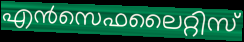
എൻസെഫലൈറ്റിസ്